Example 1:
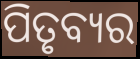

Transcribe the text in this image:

ପିତୃବ୍ୟର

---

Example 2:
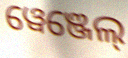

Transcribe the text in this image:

ୱେଞ୍ଜେଲ୍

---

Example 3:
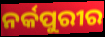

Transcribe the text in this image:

ନର୍କପୁରୀର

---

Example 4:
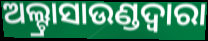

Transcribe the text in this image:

ଅଲ୍ଟ୍ରାସାଉଣ୍ଡଦ୍ୱାରା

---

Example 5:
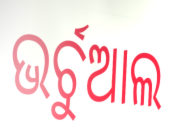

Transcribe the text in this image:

ଭର୍ଚୁଆଲ